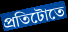
প্ৰতিটোতে